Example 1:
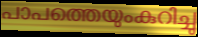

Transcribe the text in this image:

പാപത്തെയുംകുറിച്ചു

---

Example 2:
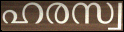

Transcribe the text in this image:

ഹരസ്വ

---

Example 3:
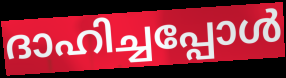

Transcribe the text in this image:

ദാഹിച്ചപ്പോൾ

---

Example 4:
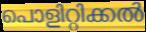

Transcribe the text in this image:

പൊളിറ്റിക്കൽ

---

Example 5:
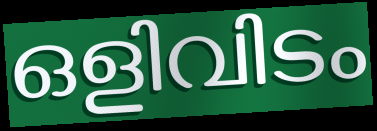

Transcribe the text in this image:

ഒളിവിടം